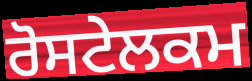
ਰੋਸਟੇਲਕਮ